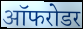
ऑफरोडर